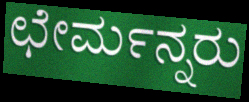
ಛೇರ್ಮನ್ನರು